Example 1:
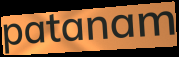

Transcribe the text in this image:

patanam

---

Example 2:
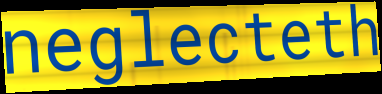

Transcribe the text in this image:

neglecteth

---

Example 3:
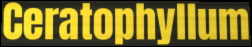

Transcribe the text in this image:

Ceratophyllum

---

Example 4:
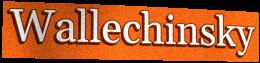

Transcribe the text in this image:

Wallechinsky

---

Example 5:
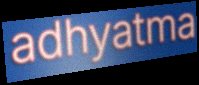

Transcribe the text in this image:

adhyatma